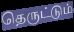
தெருட்டும்